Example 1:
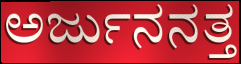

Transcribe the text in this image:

ಅರ್ಜುನನತ್ತ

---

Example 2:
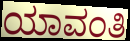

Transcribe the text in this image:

ಯಾವಂತಿ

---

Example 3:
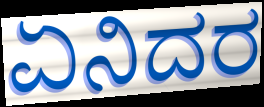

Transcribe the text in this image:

ಏನಿದರ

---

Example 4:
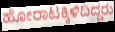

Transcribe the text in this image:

ಹೋರಾಟಕ್ಕಿಳಿದಿದ್ದರು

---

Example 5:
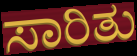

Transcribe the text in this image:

ಸಾರಿತು